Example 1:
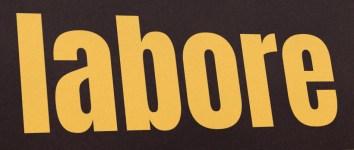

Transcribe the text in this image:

labore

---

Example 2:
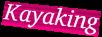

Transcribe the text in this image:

Kayaking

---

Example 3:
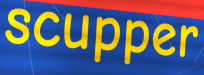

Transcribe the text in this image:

scupper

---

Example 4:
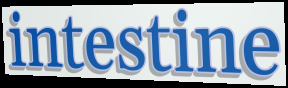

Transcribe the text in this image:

intestine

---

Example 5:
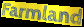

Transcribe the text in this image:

Farmland